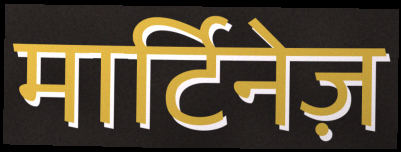
मार्टिनेज़